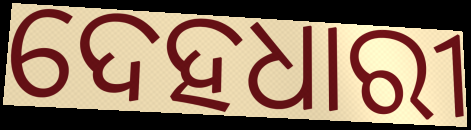
ଦେହଧାରୀ